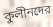
কুলীনদের